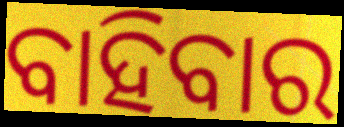
ବାହିବାର